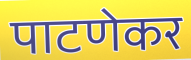
पाटणेकर